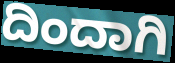
ದಿಂದಾಗಿ